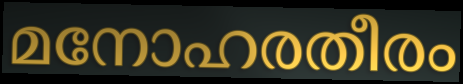
മനോഹരതീരം